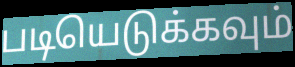
படியெடுக்கவும்